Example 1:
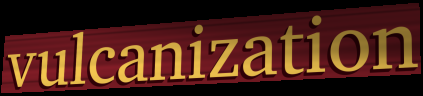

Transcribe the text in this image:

vulcanization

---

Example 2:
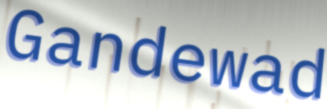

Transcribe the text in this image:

Gandewad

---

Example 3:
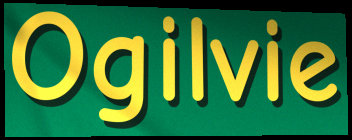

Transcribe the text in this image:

Ogilvie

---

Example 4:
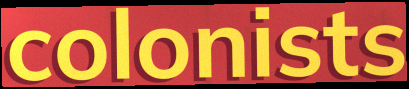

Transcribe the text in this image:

colonists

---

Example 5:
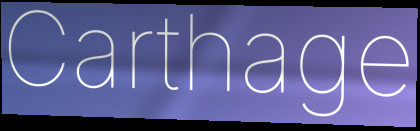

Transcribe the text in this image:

Carthage